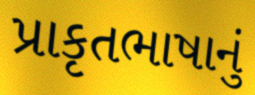
પ્રાકૃતભાષાનું